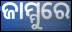
ଜାମ୍ମୁରେ